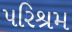
પરિશ્રમ